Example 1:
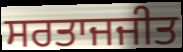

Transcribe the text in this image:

ਸਰਤਾਜਜੀਤ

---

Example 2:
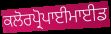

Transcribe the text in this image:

ਕਲੋਰਪ੍ਰੋਪਾਈਮਾਈਡ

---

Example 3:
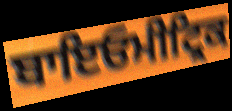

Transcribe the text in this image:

ਬਾਇਓਮੀਟ੍ਰਿਕ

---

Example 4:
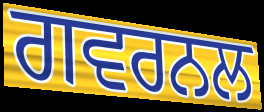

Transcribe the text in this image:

ਗਵਰਨਲ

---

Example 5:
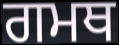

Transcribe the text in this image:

ਗਮਥ